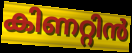
കിണറ്റിൻ